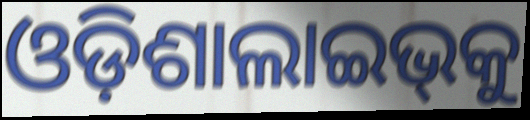
ଓଡ଼ିଶାଲାଇଭ୍‌କୁ